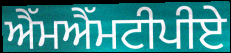
ਐੱਮਐੱਮਟੀਪੀਏ